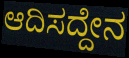
ಆದಿಸದ್ದೇನ